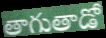
తాగుతాడో